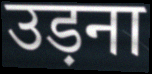
उड़ना